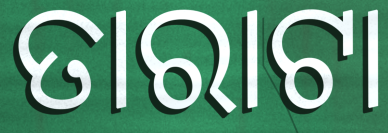
ତାରାଟା